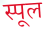
स्पूल